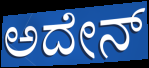
ಅದೇನ್